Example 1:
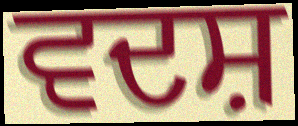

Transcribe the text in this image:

ਵਦਸ਼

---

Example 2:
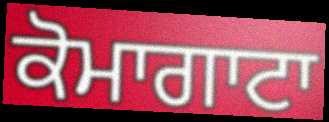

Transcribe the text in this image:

ਕੋਮਾਗਾਟਾ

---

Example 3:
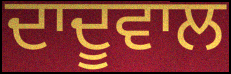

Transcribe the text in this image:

ਦਾਦੂਵਾਲ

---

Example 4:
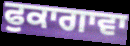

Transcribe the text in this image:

ਫੁਕਾਗਾਵਾ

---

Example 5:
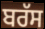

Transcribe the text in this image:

ਬਰੱਸ